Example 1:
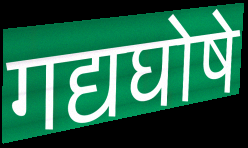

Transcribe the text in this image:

गद्यघोषे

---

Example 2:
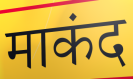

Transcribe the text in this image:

माकंद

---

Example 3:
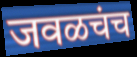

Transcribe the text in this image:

जवळचंच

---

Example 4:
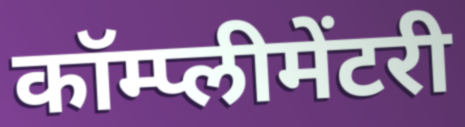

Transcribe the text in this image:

कॉम्प्लीमेंटरी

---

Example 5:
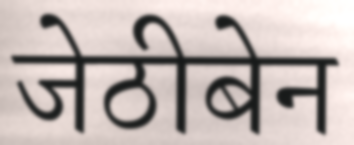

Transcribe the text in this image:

जेठीबेन